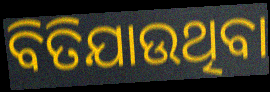
ବିତିଯାଉଥିବା